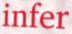
infer